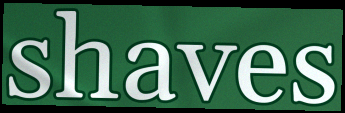
shaves